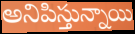
అనిపిస్తున్నాయి